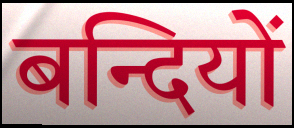
बन्दियों